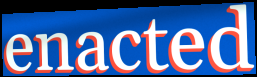
enacted